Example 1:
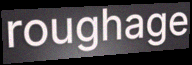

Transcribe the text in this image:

roughage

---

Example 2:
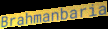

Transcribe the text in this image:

Brahmanbaria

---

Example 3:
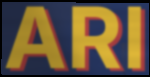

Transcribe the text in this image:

ARI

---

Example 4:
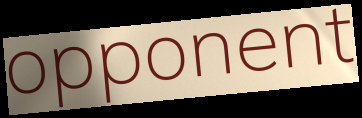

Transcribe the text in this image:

opponent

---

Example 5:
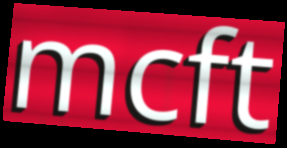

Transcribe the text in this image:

mcft